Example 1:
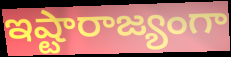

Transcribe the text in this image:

ఇష్టారాజ్యంగా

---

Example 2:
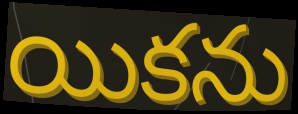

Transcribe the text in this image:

యికను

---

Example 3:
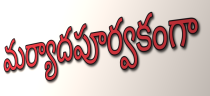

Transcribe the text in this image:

మర్యాదపూర్వకంగా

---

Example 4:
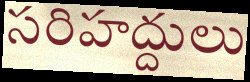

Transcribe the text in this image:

సరిహద్దులు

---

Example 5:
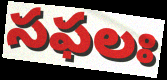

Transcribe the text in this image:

సఫలః